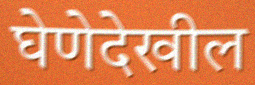
घेणेदेखील